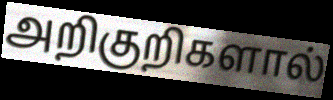
அறிகுறிகளால்